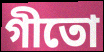
গীতো